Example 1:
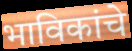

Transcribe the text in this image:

भाविकांचे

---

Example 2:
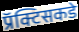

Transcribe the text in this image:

प्रॅक्टिसकडे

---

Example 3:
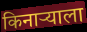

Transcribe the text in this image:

किनाऱ्याला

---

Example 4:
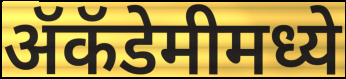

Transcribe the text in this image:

ॲकॅडेमीमध्ये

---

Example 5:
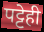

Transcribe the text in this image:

पट्टेही